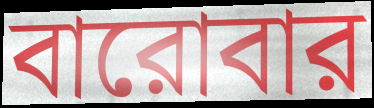
বারোবার